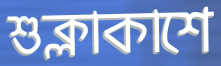
শুক্লাকাশে